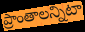
ప్రాంతాలన్నిటా